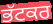
ਭੱਟਕਰ